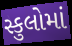
સ્કુલોમાં